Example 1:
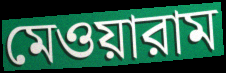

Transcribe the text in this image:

মেওয়ারাম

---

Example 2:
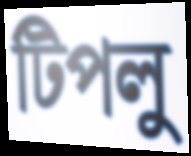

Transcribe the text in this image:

টিপলু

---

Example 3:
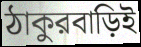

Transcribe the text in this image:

ঠাকুরবাড়িই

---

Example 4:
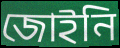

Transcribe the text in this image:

জোইনি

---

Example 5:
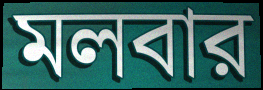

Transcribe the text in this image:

মলবার